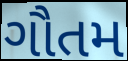
ગૌતમ